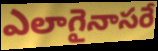
ఎలాగైనాసరే